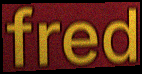
fred